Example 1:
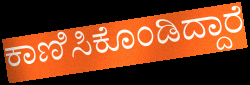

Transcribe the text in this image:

ಕಾಣಿಸಿಕೊಂಡಿದ್ದಾರೆ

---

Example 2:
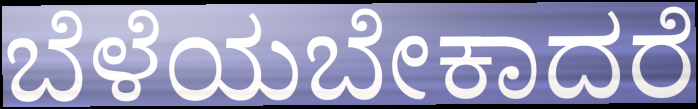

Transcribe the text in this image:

ಬೆಳೆಯಬೇಕಾದರೆ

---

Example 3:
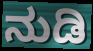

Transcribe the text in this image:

ನುಡಿ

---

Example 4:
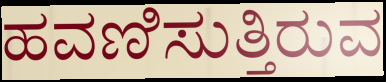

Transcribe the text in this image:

ಹವಣಿಸುತ್ತಿರುವ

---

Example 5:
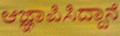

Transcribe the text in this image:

ಆಜ್ಞಾಪಿಸಿದ್ದಾನೆ